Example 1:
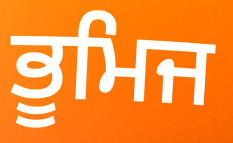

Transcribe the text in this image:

ਭੂਮਿਜ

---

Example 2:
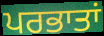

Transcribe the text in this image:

ਪਰਭਾਤਾਂ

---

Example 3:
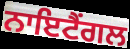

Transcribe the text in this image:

ਨਾਇਟੈਂਗਲ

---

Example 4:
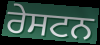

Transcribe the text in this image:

ਰੇਸਟਨ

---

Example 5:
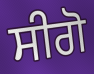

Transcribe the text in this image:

ਸੀਗੋ